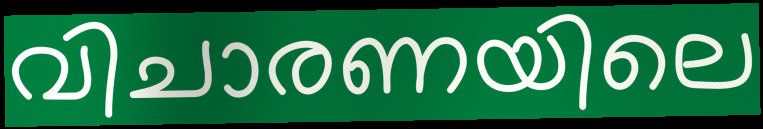
വിചാരണയിലെ